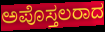
ಅಪೊಸ್ತಲರಾದ